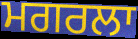
ਮਗਰਲਾ